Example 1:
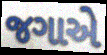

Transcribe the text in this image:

જગાએ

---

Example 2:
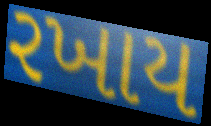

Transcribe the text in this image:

રખાય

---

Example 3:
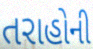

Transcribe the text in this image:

તરાહોની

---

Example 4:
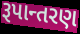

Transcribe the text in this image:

રૂપાન્તરણ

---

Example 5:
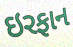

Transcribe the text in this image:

ઇરફાન